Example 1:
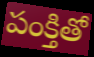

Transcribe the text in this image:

పంక్తితో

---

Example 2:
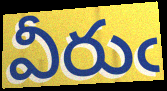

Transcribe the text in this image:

వీరుఁ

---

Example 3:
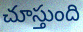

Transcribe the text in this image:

చూస్తుంది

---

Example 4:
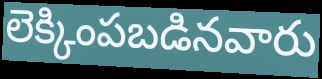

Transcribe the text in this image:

లెక్కింపబడినవారు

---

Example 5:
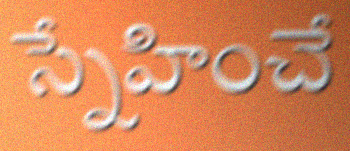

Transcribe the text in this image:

స్నేహించే